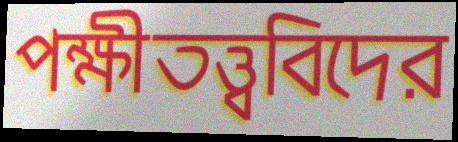
পক্ষীতত্ত্ববিদের